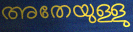
അതേയുള്ളു